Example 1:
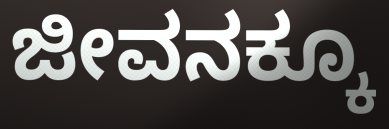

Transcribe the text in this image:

ಜೀವನಕ್ಕೂ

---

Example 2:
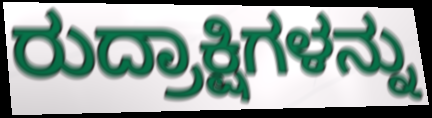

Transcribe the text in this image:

ರುದ್ರಾಕ್ಷಿಗಳನ್ನು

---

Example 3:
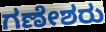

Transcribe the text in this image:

ಗಣೇಶರು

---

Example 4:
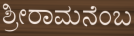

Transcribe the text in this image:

ಶ್ರೀರಾಮನೆಂಬ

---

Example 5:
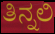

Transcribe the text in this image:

ತಿನ್ನಲಿ